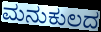
ಮನುಕುಲದ